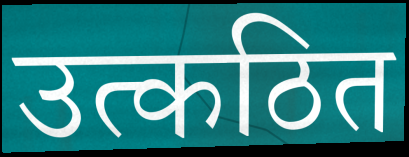
उत्कठित